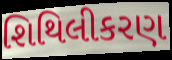
શિથિલીકરણ